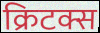
क्रिटक्स